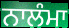
ਨਾਲੰਮਾ